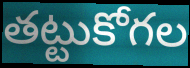
తట్టుకోగల